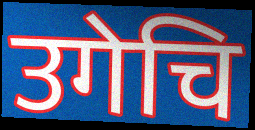
उगेचि